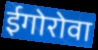
ईगोरोवा